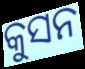
କୁସନ